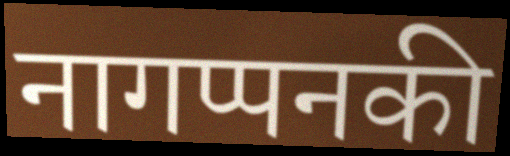
नागप्पनकी